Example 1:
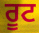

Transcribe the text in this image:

ਰੂਟ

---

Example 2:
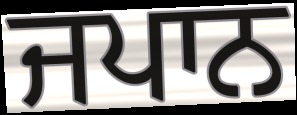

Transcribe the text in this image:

ਜਪਾਨ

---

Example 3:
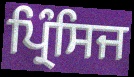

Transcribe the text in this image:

ਪ੍ਰਿੰਸਿਜ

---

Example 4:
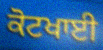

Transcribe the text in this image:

ਕੋਟਖਾਈ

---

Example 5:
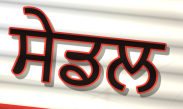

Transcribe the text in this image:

ਸੇਡਲ